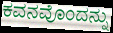
ಕವನವೊಂದನ್ನು